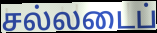
சல்லடைப்